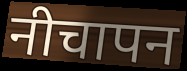
नीचापन